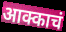
आक्काचं